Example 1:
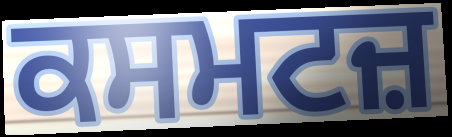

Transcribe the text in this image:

ਕਸਮਟਜ਼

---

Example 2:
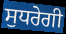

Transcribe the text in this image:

ਸੁਧਰੇਗੀ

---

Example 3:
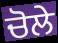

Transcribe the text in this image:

ਚੋਲੇ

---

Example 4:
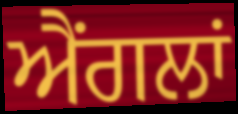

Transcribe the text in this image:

ਐਂਗਲਾਂ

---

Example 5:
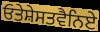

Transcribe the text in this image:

ਓਤੇਸ਼ੇਸਤਵੈਨਿਏ